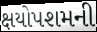
ક્ષયોપશમની